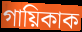
গায়িকাক